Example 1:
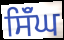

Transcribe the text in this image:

ਸਿੱੰਘ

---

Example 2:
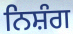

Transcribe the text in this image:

ਨਿਸ਼ੰਗ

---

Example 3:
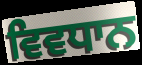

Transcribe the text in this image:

ਵਿਵਧਾਨ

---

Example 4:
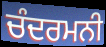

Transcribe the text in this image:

ਚੰਦਰਮਨੀ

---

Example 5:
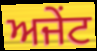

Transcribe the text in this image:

ਅਜੇਂਟ